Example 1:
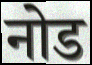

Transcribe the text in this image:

नोड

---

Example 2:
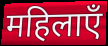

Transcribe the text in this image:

महिलाएँ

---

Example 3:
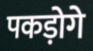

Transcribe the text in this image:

पकड़ोगे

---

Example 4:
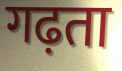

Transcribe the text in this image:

गढ़ता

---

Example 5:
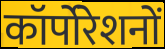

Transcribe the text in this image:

कॉर्पोरेशनों